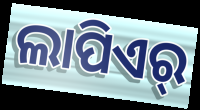
ଲାପିଏର୍